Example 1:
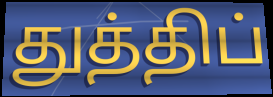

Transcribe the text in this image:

துத்திப்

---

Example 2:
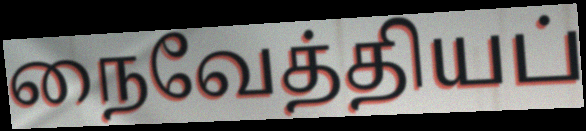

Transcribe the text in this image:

நைவேத்தியப்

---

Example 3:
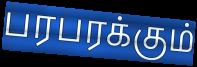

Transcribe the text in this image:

பரபரக்கும்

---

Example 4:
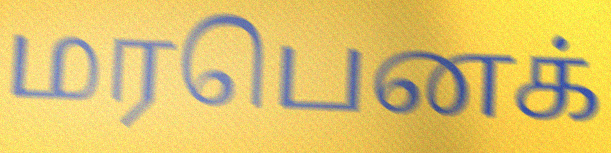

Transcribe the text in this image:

மரபெனக்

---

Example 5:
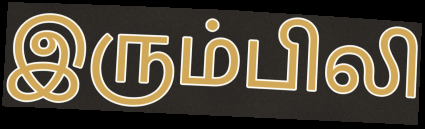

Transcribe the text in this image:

இரும்பிலி